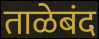
ताळेबंद